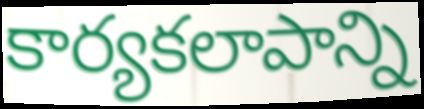
కార్యకలాపాన్ని